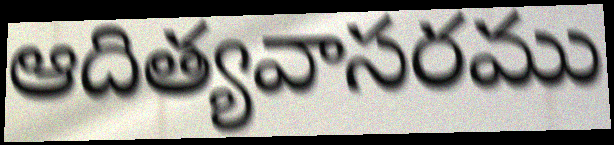
ఆదిత్యవాసరము